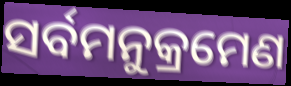
ସର୍ବମନୁକ୍ରମେଣ